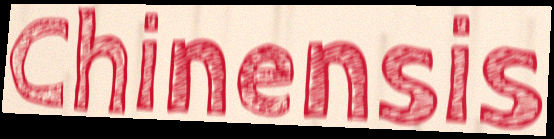
Chinensis